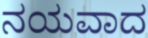
ನಯವಾದ